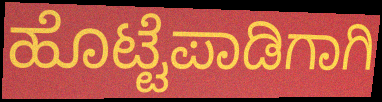
ಹೊಟ್ಟೆಪಾಡಿಗಾಗಿ